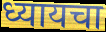
ध्यायचा